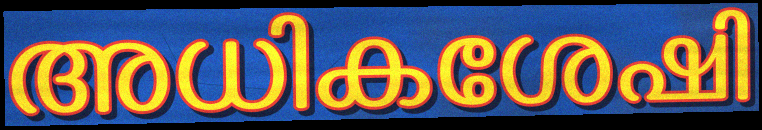
അധികശേഷി